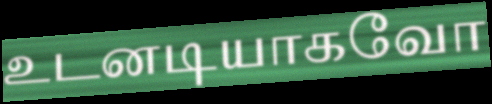
உடனடியாகவோ